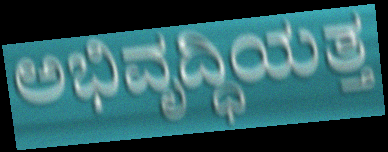
ಅಭಿವೃದ್ಧಿಯತ್ತ